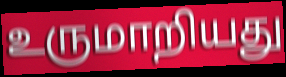
உருமாறியது